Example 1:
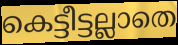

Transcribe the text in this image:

കെട്ടീട്ടല്ലാതെ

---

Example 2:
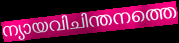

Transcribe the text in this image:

ന്യായവിചിന്തനത്തെ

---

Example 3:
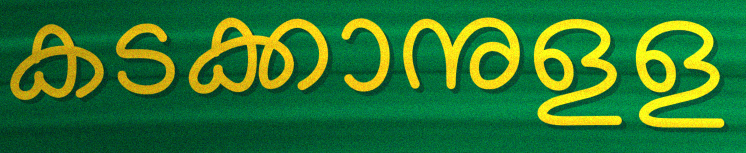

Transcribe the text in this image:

കടക്കാനുളള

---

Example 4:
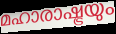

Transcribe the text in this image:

മഹാരാഷ്ട്രയും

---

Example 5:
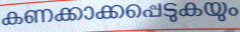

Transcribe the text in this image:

കണക്കാക്കപ്പെടുകയും